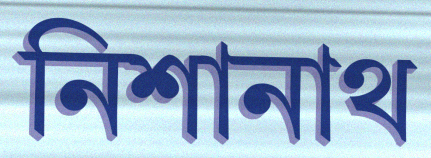
নিশানাথ